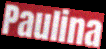
Paulina